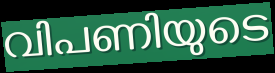
വിപണിയുടെ